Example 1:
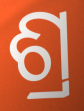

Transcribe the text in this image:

ଶ୍ର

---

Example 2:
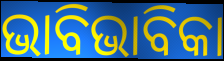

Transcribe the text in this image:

ଭାବିଭାବିକା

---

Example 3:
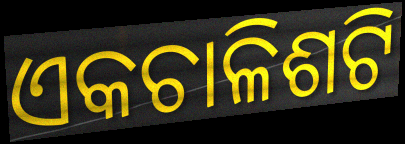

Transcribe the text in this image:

ଏକଚାଳିଶଟି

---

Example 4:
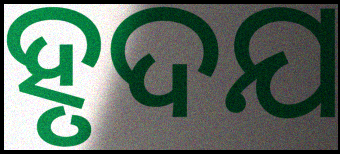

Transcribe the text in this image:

ହୃଦଯ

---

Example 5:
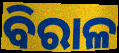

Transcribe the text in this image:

ବିରାଳ